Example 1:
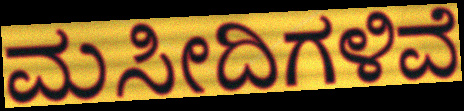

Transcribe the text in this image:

ಮಸೀದಿಗಳಿವೆ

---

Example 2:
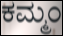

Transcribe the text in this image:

ಕಮ್ಮಂ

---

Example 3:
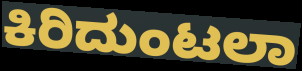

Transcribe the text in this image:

ಕಿರಿದುಂಟಲಾ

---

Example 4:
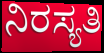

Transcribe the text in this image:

ನಿರಸ್ಯತಿ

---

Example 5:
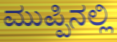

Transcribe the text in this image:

ಮುಪ್ಪಿನಲ್ಲಿ